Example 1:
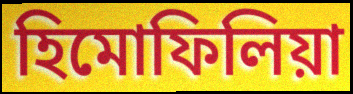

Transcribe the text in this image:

হিমোফিলিয়া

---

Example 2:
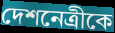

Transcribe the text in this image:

দেশনেত্রীকে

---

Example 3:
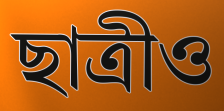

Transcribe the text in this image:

ছাত্রীও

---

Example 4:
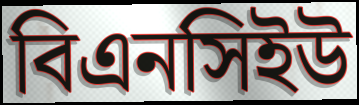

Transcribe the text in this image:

বিএনসিইউ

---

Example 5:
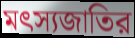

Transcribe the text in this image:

মৎস্যজাতির